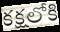
కక్షలోకి